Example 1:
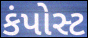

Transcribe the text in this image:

કંપોસ્ટ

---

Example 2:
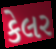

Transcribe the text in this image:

કેલર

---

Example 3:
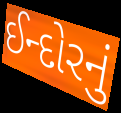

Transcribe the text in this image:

ઈન્દોરનું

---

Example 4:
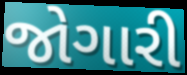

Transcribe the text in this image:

જોગારી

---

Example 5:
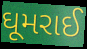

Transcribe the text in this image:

ઘૂમરાઈ